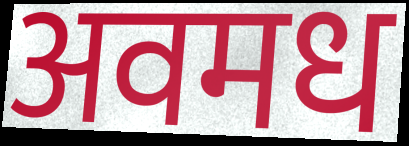
अवमध